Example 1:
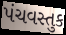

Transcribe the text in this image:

પંચવસ્તુક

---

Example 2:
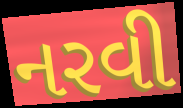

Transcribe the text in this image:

નરવી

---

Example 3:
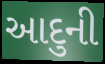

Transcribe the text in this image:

આદુની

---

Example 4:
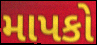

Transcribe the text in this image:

માપકો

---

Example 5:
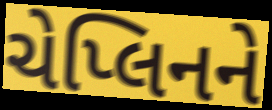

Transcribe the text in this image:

ચેપ્લિનને